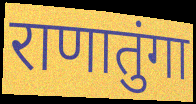
राणातुंगा